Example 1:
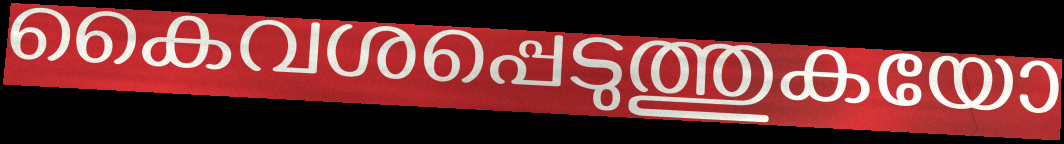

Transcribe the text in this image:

കൈവശപ്പെടുത്തുകയോ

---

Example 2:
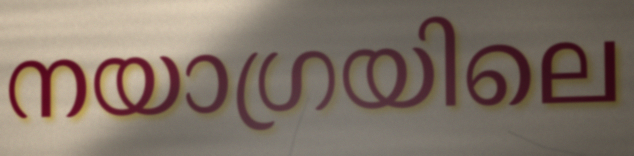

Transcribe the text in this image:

നയാഗ്രയിലെ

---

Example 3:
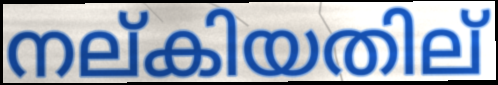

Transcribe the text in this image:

നല്കിയതില്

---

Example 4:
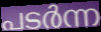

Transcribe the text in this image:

പടർന്ന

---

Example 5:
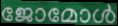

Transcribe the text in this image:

ജോമോൾ